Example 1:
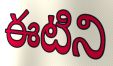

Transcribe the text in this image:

ఈటిని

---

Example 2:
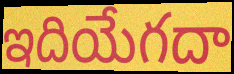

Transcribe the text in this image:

ఇదియేగదా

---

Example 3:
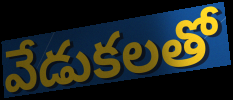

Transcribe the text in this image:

వేడుకలతో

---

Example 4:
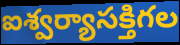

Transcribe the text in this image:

ఐశ్వర్యాసక్తిగల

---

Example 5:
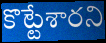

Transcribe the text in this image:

కొట్టేశారని